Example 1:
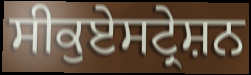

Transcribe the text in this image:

ਸੀਕੁਏਸਟ੍ਰੇਸ਼ਨ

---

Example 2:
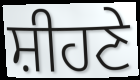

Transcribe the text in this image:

ਸ਼ੀਹਣੇ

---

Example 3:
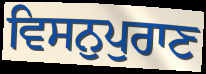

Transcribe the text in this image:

ਵਿਸਨੁਪੁਰਾਣ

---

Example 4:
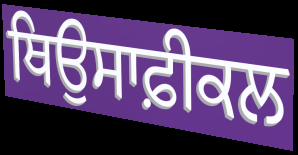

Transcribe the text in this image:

ਥਿਉਸਾਫ਼ੀਕਲ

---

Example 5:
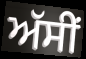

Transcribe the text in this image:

ਅੱਸੀਂ